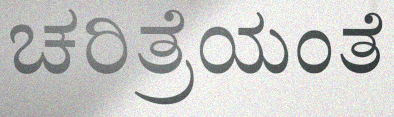
ಚರಿತ್ರೆಯಂತೆ